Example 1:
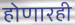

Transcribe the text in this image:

होणारही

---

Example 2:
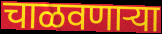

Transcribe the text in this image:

चाळवणाऱ्या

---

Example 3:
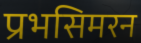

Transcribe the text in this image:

प्रभसिमरन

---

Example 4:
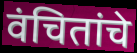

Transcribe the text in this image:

वंचितांचे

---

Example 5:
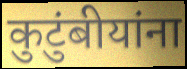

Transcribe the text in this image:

कुटुंबीयांना